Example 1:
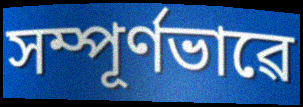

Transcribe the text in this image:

সম্পূৰ্ণভাৱে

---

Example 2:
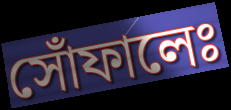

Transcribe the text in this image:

সোঁফালেঃ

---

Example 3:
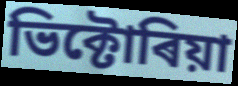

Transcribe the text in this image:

ভিক্টোৰিয়া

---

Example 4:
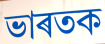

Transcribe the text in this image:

ভাৰতক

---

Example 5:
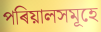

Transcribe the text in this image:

পৰিয়ালসমূহে